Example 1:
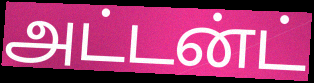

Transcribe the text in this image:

அட்டன்ட்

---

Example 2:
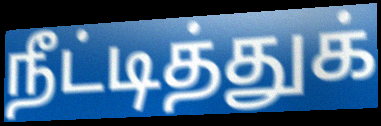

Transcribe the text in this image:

நீட்டித்துக்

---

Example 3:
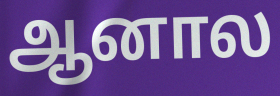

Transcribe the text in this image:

ஆனால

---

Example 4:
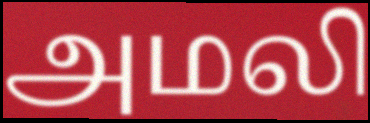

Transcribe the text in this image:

அமலி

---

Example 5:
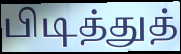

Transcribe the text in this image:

பிடித்துத்